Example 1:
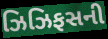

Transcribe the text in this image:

ઝિઝિફસની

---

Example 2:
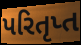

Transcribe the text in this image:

પરિતૃપ્ત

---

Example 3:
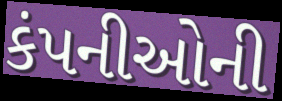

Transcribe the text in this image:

કંપનીઓની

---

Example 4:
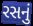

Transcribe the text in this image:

રસનું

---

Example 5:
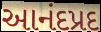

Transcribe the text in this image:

આનંદપ્રદ